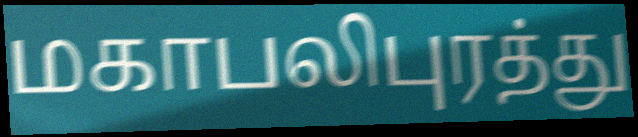
மகாபலிபுரத்து